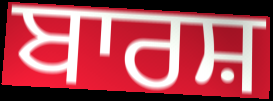
ਬਾਰਸ਼